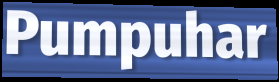
Pumpuhar